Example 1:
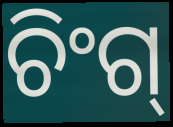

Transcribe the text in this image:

ଚିଂଗ୍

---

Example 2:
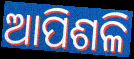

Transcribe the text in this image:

ଆପିଶଳି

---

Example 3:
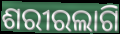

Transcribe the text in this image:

ଶରୀରଲାଗି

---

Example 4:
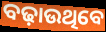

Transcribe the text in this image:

ବଢ଼ାଉଥିବେ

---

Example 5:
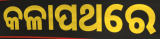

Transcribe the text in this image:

କଳାପଥରେ